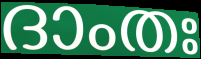
ദാംതഃ